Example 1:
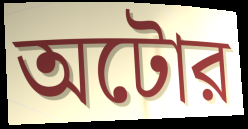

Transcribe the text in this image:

অটোর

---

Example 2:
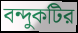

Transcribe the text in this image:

বন্দুকটির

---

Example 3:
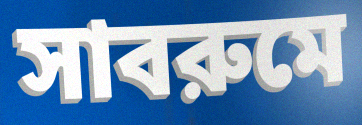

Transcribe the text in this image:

সাবরুমে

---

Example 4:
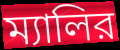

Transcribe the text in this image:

ম্যালির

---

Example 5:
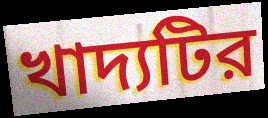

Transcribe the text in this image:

খাদ্যটির